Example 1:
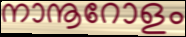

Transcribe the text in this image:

നാനൂറോളം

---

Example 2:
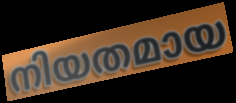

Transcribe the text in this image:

നിയതമായ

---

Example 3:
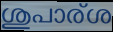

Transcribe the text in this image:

ശുപാര്ശ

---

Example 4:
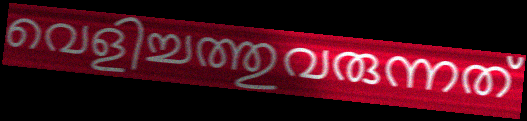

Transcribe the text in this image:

വെളിച്ചത്തുവരുന്നത്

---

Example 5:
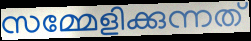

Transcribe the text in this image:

സമ്മേളിക്കുന്നത്